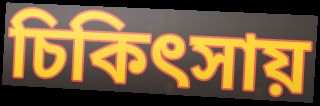
চিকিৎসায়